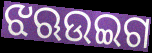
ଝଋଉଇଗ